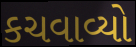
કચવાવ્યો